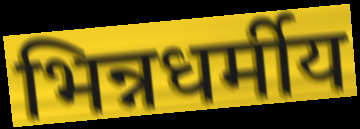
भिन्नधर्मीय